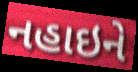
નહાઇને